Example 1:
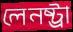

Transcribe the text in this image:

লেনষ্ট্ৰা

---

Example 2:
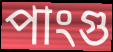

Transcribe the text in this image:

পাংগু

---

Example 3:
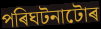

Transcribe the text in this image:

পৰিঘটনাটোৰ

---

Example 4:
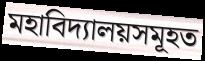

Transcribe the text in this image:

মহাবিদ্যালয়সমূহত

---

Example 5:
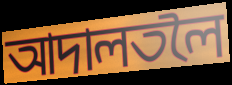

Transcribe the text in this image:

আদালতলৈ